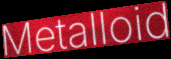
Metalloid